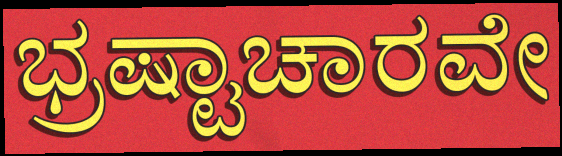
ಭ್ರಷ್ಟಾಚಾರವೇ